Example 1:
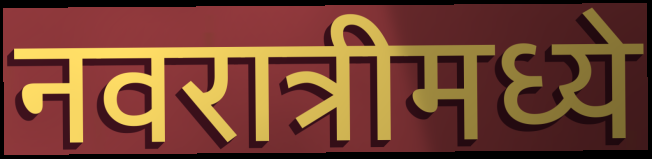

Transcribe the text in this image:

नवरात्रीमध्ये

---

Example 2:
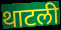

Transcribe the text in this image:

थाटली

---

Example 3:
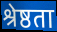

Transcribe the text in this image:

श्रेष्ठता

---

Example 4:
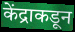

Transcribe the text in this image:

केंद्राकडून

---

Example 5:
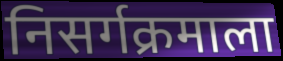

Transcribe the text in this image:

निसर्गक्रमाला